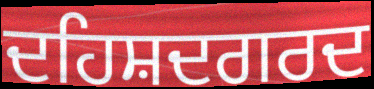
ਦਹਿਸ਼ਦਗਰਦ